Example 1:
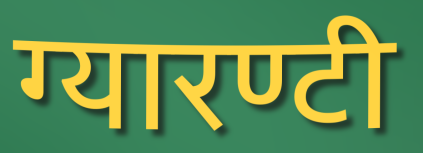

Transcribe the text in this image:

ग्यारण्टी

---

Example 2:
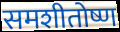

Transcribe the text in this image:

समशीतोष्ण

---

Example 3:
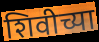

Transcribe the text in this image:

शिवीच्या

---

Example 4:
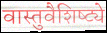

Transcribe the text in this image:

वास्तुवैशिष्ट्ये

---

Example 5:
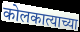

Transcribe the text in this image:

कोलकात्याच्या